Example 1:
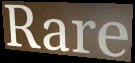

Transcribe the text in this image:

Rare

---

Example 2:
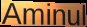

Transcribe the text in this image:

Aminul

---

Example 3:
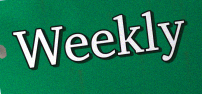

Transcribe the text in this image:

Weekly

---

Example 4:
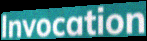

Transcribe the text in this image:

Invocation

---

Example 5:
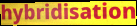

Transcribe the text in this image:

hybridisation